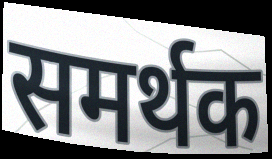
समर्थक